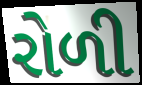
રોળી